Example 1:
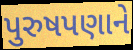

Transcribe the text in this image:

પુરુષપણાને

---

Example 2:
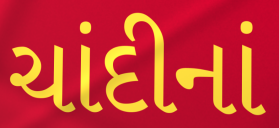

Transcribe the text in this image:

ચાંદીનાં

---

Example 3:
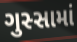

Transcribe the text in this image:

ગુસ્સામાં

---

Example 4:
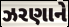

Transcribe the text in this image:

ઝરણાને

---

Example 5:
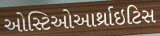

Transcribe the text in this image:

ઓસ્ટિઓઆર્થ્રાઇટિસ